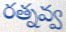
రత్నవ్వ